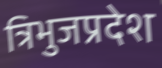
त्रिभुजप्रदेश